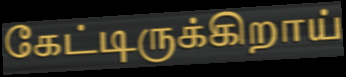
கேட்டிருக்கிறாய்